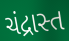
ચંદ્રાસ્ત